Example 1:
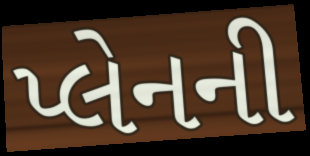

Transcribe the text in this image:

પ્લેનની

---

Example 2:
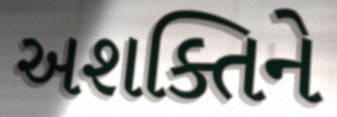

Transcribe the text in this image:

અશક્તિને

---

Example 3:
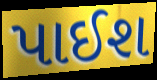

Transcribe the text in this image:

પાઈશ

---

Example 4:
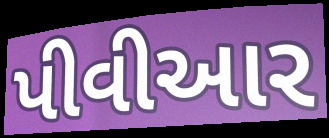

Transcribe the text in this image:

પીવીઆર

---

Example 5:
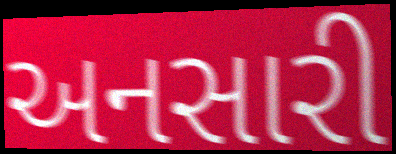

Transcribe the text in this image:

અનસારી